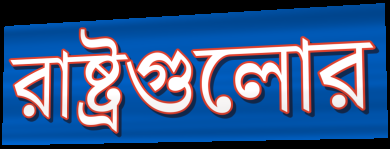
রাষ্ট্রগুলোর